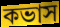
কভাস